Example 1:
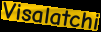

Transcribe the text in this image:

Visalatchi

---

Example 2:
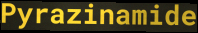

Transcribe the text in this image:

Pyrazinamide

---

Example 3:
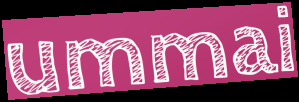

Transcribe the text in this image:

ummai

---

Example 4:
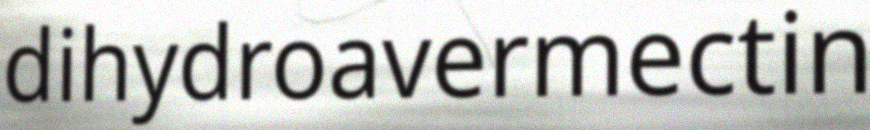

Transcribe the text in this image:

dihydroavermectin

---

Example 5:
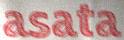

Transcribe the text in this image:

asata